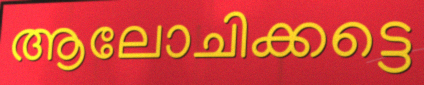
ആലോചിക്കട്ടെ